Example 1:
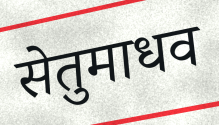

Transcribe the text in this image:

सेतुमाधव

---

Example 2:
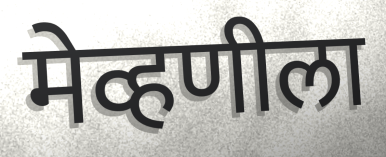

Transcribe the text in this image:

मेव्हणीला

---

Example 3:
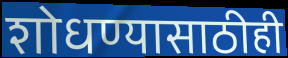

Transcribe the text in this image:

शोधण्यासाठीही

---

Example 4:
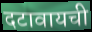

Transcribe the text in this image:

दटावायची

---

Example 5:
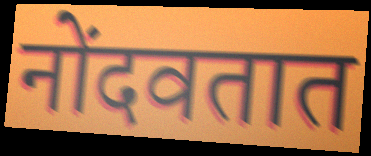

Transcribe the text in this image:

नोंदवतात